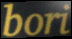
bori